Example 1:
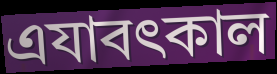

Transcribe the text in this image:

এযাবৎকাল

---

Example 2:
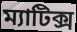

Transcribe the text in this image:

ম্যাটিক্স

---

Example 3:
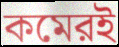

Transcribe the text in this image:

কমেরই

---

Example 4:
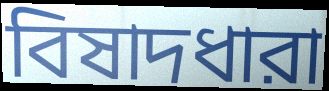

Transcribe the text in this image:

বিষাদধারা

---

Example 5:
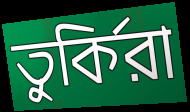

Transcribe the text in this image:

তুর্কিরা